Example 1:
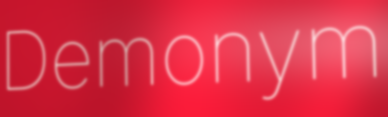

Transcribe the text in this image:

Demonym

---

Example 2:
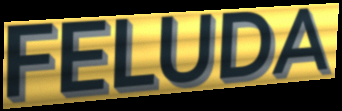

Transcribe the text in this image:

FELUDA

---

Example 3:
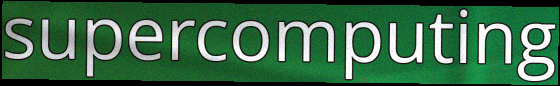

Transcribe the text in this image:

supercomputing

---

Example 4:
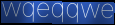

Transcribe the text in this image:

wqeqqwe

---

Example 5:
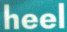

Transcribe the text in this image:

heel